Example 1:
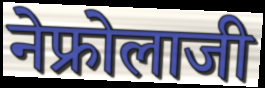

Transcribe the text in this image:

नेफ्रोलाजी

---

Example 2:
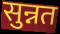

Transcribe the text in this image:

सुन्नत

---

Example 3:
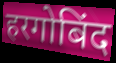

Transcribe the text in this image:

हरगोबिंद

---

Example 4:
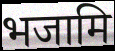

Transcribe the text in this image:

भजामि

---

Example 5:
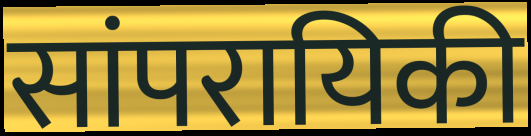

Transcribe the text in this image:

सांपरायिकी